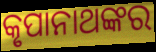
କୃପାନାଥଙ୍କର